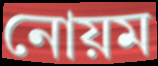
নোয়ম